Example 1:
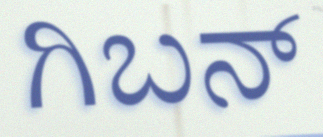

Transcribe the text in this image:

ಗಿಬನ್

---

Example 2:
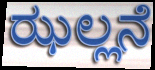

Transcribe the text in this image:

ಝಲ್ಲನೆ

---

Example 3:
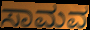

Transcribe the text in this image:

ಸಾಮವ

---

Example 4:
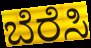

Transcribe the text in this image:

ಬೆರೆಸಿ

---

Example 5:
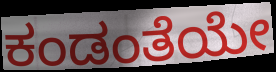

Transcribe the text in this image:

ಕಂಡಂತೆಯೇ